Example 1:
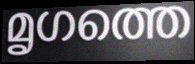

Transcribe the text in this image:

മൃഗത്തെ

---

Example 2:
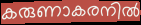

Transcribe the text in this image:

കരുണാകരനിൽ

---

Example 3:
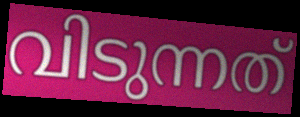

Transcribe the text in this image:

വിടുന്നത്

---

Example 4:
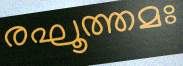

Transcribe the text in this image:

രഘൂത്തമഃ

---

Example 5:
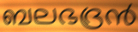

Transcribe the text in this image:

ബലഭദ്രൻ